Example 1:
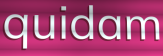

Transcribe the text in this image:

quidam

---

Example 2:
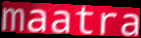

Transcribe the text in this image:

maatra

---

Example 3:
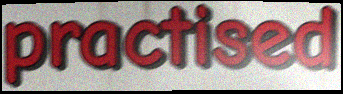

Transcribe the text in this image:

practised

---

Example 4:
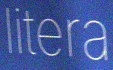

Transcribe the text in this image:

litera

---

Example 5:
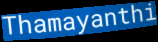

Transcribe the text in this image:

Thamayanthi